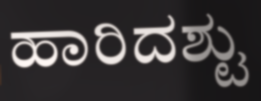
ಹಾರಿದಶ್ಟು